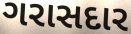
ગરાસદાર